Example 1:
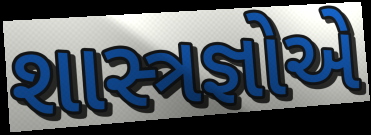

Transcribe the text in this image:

શાસ્ત્રજ્ઞોએ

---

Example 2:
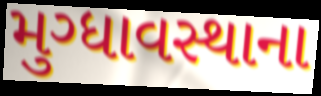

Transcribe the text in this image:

મુગ્ધાવસ્થાના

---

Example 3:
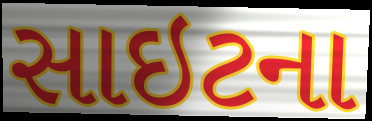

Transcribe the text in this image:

સાઇટના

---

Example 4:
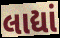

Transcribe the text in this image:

લાદ્યાં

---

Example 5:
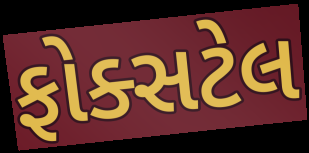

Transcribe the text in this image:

ફોક્સટેલ